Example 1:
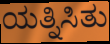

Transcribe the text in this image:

ಯತ್ನಿಸಿತು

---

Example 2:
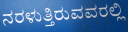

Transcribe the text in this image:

ನರಳುತ್ತಿರುವವರಲ್ಲಿ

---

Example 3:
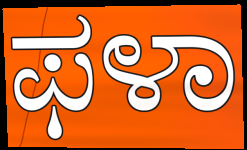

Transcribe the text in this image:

ಫಳಾ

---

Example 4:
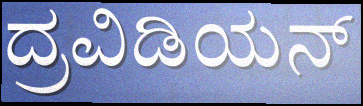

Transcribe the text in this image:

ದ್ರವಿಡಿಯನ್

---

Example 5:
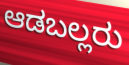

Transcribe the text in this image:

ಆಡಬಲ್ಲರು